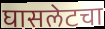
घासलेटचा